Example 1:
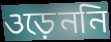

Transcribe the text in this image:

ওড়েননি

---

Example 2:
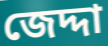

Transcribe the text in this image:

জেদ্দা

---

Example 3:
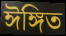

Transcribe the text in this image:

ঈঙ্গিত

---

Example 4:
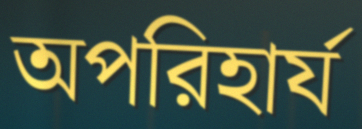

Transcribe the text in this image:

অপরিহার্য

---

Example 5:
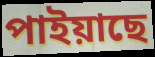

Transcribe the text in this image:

পাইয়াছে